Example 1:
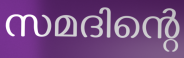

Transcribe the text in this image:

സമദിന്റെ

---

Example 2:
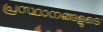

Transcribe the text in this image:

പ്രസ്ഥാനങ്ങളുടെ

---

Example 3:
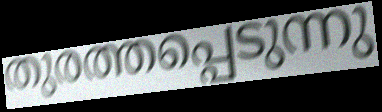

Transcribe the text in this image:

തുരത്തപ്പെടുന്നു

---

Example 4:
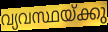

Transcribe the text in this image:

വ്യവസ്ഥയ്ക്കു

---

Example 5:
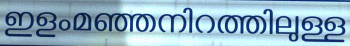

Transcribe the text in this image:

ഇളംമഞ്ഞനിറത്തിലുള്ള